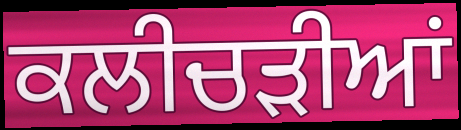
ਕਲੀਚੜੀਆਂ